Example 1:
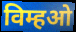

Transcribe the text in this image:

विम्हओ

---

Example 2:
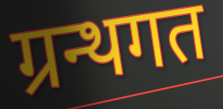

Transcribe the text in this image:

ग्रन्थगत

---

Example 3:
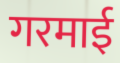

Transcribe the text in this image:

गरमाई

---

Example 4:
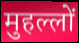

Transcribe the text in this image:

मुहल्लों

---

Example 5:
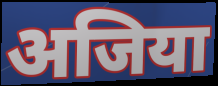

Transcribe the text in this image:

अजिया